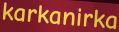
karkanirka